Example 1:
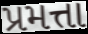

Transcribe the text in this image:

પ્રમત્તા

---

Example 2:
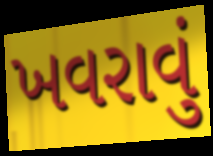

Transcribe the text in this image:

ખવરાવું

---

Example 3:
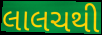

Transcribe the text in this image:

લાલચથી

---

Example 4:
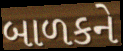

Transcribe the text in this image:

બાળકને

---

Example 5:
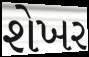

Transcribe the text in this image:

શેખર